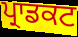
ਪ੍ਰਾਡਕਟ